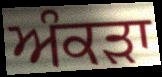
ਅੰਕੜਾ